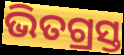
ଭିତଗ୍ରସ୍ତ